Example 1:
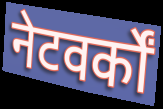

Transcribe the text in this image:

नेटवर्कों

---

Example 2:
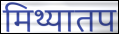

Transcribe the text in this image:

मिथ्यातप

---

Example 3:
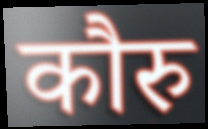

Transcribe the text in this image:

कौरु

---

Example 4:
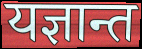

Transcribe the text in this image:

यज्ञान्त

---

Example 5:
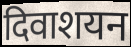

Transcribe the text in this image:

दिवाशयन